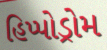
હિપ્પોડ્રોમ